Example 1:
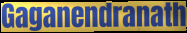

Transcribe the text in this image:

Gaganendranath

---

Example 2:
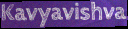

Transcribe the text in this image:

Kavyavishva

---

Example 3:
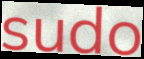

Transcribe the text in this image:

sudo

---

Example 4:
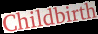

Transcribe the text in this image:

Childbirth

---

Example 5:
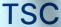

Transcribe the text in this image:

TSC